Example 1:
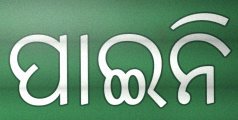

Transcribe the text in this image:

ପାଇନି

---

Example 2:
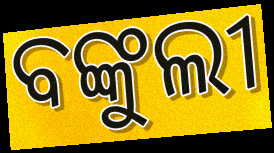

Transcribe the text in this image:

ବଙ୍କୁଲୀ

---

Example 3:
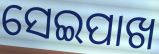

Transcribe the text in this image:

ସେଇପାଖ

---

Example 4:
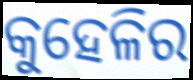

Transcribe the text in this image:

କୁହେଳିର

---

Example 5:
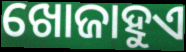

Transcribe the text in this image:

ଖୋଜାହୁଏ